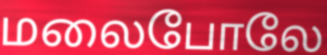
மலைபோலே